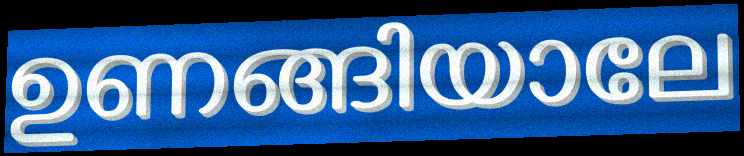
ഉണങ്ങിയാലേ